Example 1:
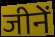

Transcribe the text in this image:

जीनें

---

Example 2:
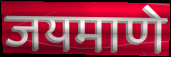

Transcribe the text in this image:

जयमाणे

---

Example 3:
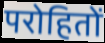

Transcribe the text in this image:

परोहितों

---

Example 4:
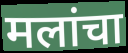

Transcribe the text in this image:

मलांचा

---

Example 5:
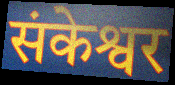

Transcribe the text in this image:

संकेश्वर